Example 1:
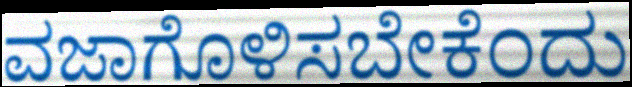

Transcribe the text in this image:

ವಜಾಗೊಳಿಸಬೇಕೆಂದು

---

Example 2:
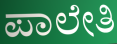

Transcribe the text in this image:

ಪಾಲೇತಿ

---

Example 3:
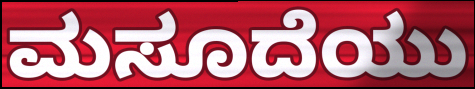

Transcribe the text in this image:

ಮಸೂದೆಯು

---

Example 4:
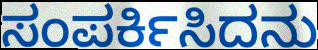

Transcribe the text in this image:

ಸಂಪರ್ಕಿಸಿದನು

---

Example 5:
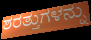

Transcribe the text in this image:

ಶರತ್ತುಗಳನ್ನು